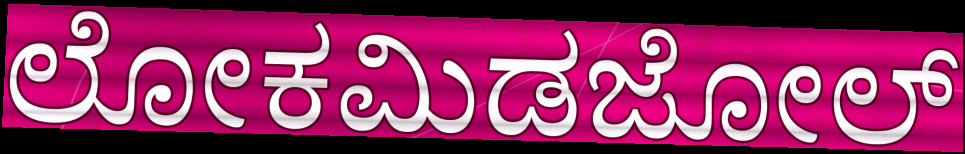
ಲೋಕಮಿಡಜೋಲ್